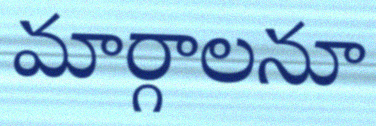
మార్గాలనూ